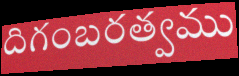
దిగంబరత్వము